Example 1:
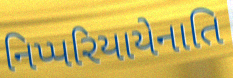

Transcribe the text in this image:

નિપ્પરિયાયેનાતિ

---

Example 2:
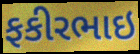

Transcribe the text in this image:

ફકીરભાઇ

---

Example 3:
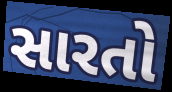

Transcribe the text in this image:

સારતો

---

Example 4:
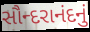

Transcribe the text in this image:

સૌન્દરાનંદનું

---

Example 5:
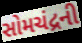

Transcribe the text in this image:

સોમચંદ્રની